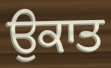
ਉਕਾਤ